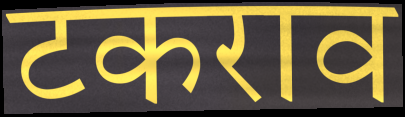
टकराव